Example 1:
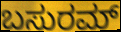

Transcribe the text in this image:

ಬಸುರಮ್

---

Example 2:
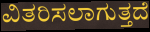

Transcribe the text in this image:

ವಿತರಿಸಲಾಗುತ್ತದೆ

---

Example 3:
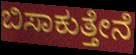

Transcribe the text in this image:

ಬಿಸಾಕುತ್ತೇನೆ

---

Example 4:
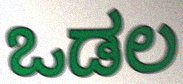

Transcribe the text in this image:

ಒಡಲ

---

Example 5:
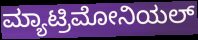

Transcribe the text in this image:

ಮ್ಯಾಟ್ರಿಮೋನಿಯಲ್